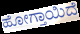
ಹೋಗ್ತಾಯಿದೆ